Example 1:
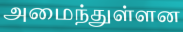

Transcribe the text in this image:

அமைந்துள்ளன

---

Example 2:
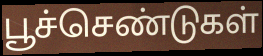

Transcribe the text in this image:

பூச்செண்டுகள்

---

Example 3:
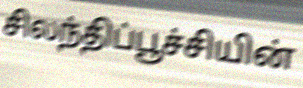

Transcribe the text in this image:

சிலந்திப்பூச்சியின்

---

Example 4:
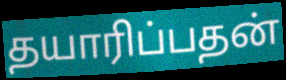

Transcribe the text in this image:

தயாரிப்பதன்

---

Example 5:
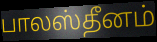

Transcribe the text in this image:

பாலஸ்தீனம்